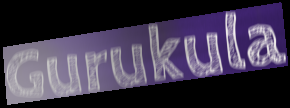
Gurukula